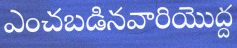
ఎంచబడినవారియొద్ద